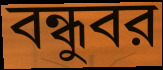
বন্ধুবর